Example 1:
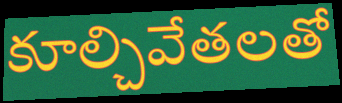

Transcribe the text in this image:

కూల్చివేతలతో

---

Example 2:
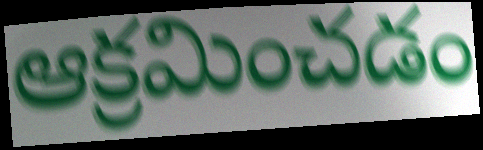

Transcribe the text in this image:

ఆక్రమించడం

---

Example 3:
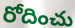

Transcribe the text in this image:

రోదించు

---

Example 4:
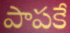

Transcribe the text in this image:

పాపకే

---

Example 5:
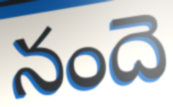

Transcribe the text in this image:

నందె